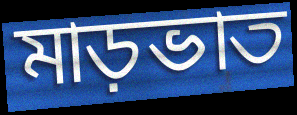
মাড়ভাত